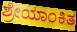
ಶ್ರೇಯಾಂಕಿತ